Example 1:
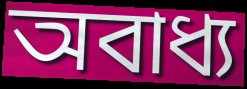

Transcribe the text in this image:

অবাধ্য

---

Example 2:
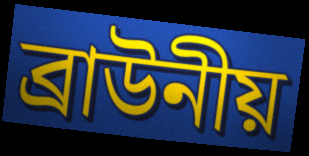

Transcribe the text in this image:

ব্ৰাউনীয়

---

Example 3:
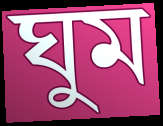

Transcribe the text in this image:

ঘুম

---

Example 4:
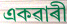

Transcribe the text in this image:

একৱাৰী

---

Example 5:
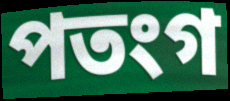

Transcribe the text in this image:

পতংগ